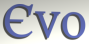
Evo